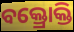
ବକ୍ତ୍ରୋକ୍ତି